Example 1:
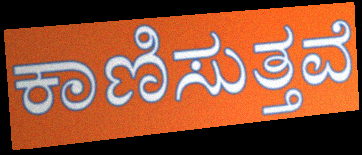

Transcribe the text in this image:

ಕಾಣಿಸುತ್ತವೆ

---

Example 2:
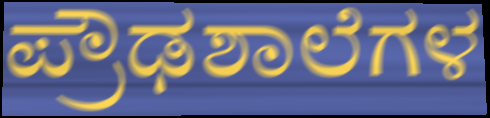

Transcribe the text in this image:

ಪ್ರೌಢಶಾಲೆಗಳ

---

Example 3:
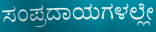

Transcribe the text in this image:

ಸಂಪ್ರದಾಯಗಳಲ್ಲೇ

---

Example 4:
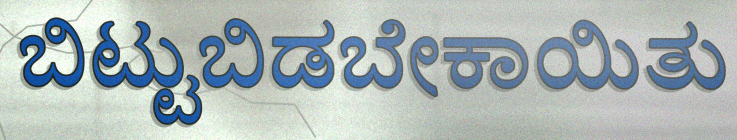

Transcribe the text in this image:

ಬಿಟ್ಟುಬಿಡಬೇಕಾಯಿತು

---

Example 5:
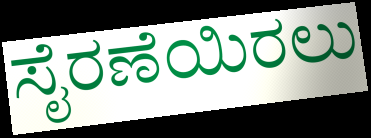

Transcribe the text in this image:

ಸೈರಣೆಯಿರಲು